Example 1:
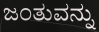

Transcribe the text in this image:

ಜಂತುವನ್ನು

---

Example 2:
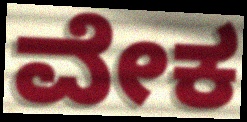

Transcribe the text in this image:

ವೇಕ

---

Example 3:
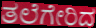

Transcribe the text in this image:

ತಲೆಗೇರಿದ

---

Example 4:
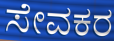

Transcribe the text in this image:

ಸೇವಕರ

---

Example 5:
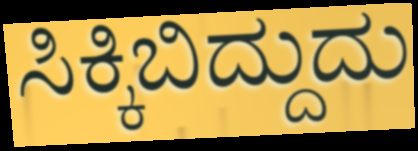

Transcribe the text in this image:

ಸಿಕ್ಕಿಬಿದ್ದುದು